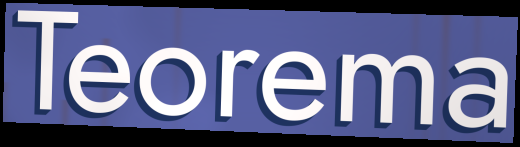
Teorema